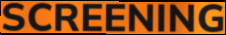
SCREENING